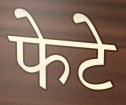
फेटे